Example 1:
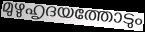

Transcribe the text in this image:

മുഴുഹൃദയത്തോടും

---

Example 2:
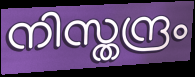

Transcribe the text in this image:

നിസ്തന്ദ്രം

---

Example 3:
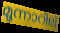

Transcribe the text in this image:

മൂന്നാറില്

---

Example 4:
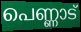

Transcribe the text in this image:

പെണ്ണാട്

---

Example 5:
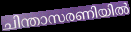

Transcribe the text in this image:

ചിന്താസരണിയിൽ